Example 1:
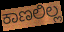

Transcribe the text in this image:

ಕಾಣಲಿಲ್ಲ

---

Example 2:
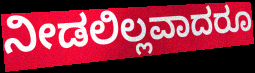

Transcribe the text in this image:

ನೀಡಲಿಲ್ಲವಾದರೂ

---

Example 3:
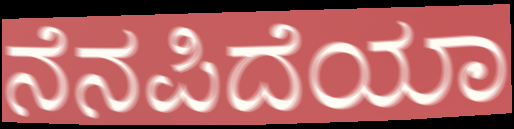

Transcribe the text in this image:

ನೆನಪಿದೆಯಾ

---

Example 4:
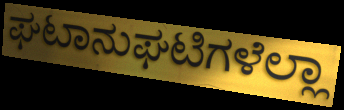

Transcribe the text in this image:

ಘಟಾನುಘಟಿಗಳೆಲ್ಲಾ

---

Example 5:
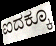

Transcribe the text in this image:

ಐದಕ್ಕೂ